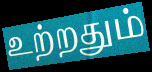
உற்றதும்